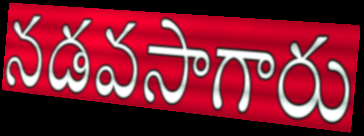
నడవసాగారు